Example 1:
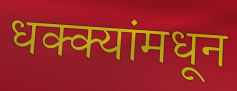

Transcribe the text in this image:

धक्क्यांमधून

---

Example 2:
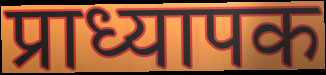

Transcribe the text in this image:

प्राध्यापक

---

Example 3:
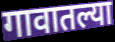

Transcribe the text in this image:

गावातल्या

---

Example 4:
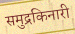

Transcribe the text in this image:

समुद्रकिनारी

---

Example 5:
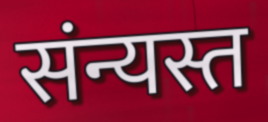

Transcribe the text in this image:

संन्यस्त